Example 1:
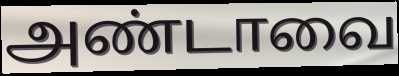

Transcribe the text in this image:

அண்டாவை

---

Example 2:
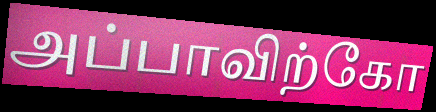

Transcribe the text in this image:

அப்பாவிற்கோ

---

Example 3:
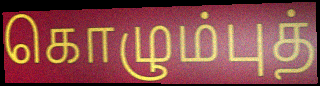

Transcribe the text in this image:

கொழும்புத்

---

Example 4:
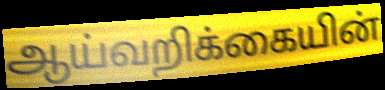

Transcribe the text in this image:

ஆய்வறிக்கையின்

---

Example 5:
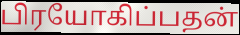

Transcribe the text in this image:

பிரயோகிப்பதன்